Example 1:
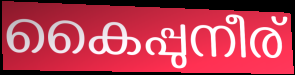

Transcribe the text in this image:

കൈപ്പുനീര്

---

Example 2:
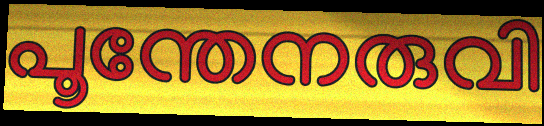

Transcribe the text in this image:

പൂന്തേനരുവി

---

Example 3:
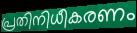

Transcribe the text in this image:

പ്രതിനിധീകരണം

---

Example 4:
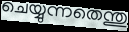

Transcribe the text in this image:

ചെയ്യുന്നതെന്തു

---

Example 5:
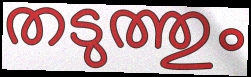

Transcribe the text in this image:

തടുത്തും